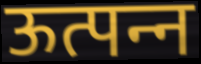
ऊत्पन्न